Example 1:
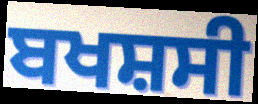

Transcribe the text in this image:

ਬਖਸ਼ਸੀ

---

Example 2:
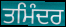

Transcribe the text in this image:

ਤਮਿੰਦਰ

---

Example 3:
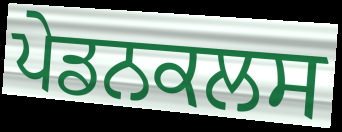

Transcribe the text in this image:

ਪੇਡਨਕਲਸ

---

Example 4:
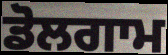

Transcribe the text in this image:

ਡੋਲਗਾਮ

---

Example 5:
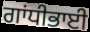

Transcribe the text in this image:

ਗਾਂਧੀਭਾਈ